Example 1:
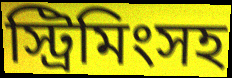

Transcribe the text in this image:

স্ট্রিমিংসহ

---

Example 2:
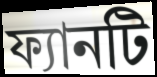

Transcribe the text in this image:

ফ্যানটি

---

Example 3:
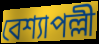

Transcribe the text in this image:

বেশ্যাপল্লী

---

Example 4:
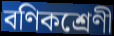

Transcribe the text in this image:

বণিকশ্রেণী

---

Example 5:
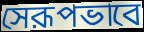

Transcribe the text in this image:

সেরূপভাবে